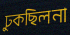
ঢুকছিলনা